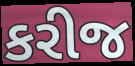
કરીજ